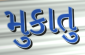
મુકાતુ